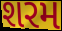
શરમ